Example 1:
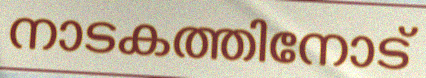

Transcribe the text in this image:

നാടകത്തിനോട്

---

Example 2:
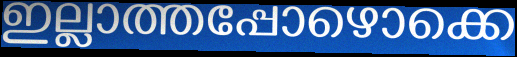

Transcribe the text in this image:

ഇല്ലാത്തപ്പോഴൊക്കെ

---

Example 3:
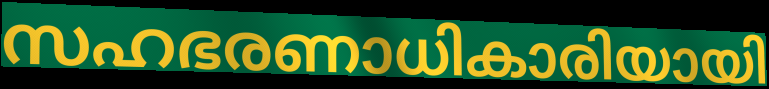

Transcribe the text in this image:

സഹഭരണാധികാരിയായി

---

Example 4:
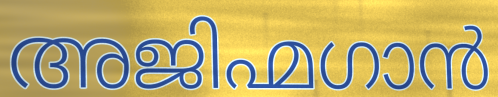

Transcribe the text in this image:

അജിഹ്മഗാൻ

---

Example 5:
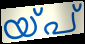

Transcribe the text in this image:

യ്പ്